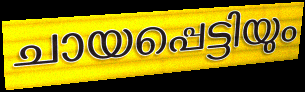
ചായപ്പെട്ടിയും